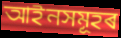
আইনসমূহৰ